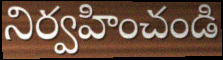
నిర్వహించండి